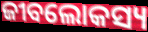
ଜୀବଲୋକସ୍ୟ